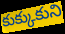
కుక్కుకుని